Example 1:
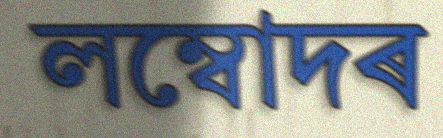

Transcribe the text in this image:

লম্বোদৰ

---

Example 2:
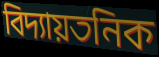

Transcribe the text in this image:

বিদ্যায়তনিক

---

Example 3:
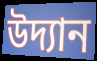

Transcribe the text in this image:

উদ্যান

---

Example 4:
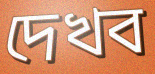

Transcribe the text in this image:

দেখব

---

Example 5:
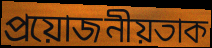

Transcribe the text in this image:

প্ৰয়োজনীয়তাক